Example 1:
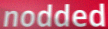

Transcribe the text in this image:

nodded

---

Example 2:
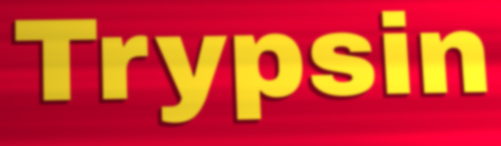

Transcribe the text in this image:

Trypsin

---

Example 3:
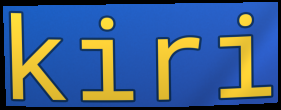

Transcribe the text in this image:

kiri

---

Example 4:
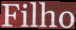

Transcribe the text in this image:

Filho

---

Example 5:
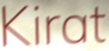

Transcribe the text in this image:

Kirat